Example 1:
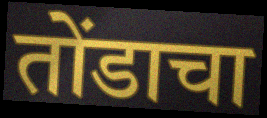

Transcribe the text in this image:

तोंडाचा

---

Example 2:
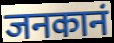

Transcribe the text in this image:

जनकानं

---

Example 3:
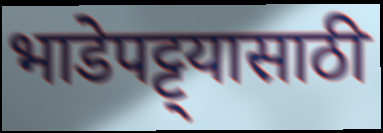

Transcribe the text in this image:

भाडेपट्ट्यासाठी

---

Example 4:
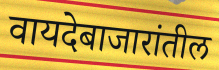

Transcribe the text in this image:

वायदेबाजारांतील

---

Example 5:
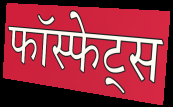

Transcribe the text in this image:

फॉस्फेट्स